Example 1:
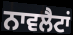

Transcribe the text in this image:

ਨਾਵਲੈਟਾਂ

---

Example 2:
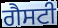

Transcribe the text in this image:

ਗੈਸਟੀ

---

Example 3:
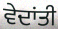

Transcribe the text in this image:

ਵੇਦਾਂਤੀ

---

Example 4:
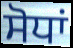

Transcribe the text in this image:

ਸੋਧਾਂ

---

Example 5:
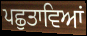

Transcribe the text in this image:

ਪਛੁਤਾਵਿਆਂ